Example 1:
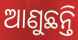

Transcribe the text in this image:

ଆଣୁଛନ୍ତି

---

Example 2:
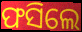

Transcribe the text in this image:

ଫସିଲେ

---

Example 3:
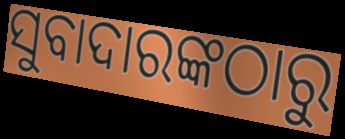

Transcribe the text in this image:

ସୁବାଦାରଙ୍କଠାରୁ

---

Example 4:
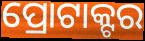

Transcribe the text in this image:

ପ୍ରୋଟାକ୍ଟର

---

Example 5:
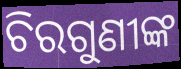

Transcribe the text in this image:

ଚିରଗୁଣୀଙ୍କ